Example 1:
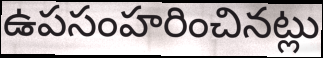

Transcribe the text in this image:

ఉపసంహరించినట్లు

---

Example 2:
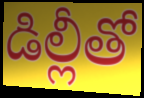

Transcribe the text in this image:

డిల్లీతో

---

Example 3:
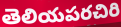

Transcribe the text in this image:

తెలియపరచిరి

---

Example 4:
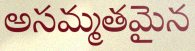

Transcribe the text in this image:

అసమ్మతమైన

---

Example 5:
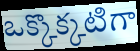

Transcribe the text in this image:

ఒక్కొక్కటిగా